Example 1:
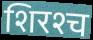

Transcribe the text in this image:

शिरश्च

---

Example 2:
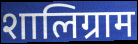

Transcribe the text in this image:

शालिग्राम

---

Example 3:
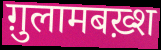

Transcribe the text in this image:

ग़ुलामबख़्श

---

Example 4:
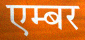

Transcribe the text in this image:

एम्बर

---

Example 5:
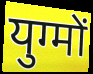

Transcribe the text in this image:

युग्मों